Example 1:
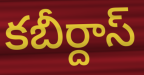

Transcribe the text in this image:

కబీర్దాస్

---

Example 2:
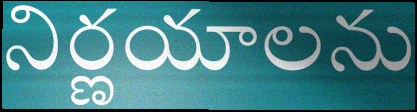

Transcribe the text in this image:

నిర్ణయాలను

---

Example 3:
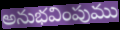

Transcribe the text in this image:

అనుభవింపుము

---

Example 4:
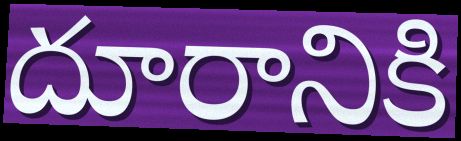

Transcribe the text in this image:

దూరానికి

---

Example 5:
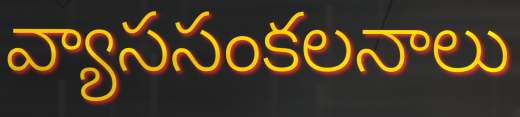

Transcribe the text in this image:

వ్యాససంకలనాలు